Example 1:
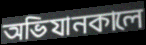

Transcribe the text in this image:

অভিযানকালে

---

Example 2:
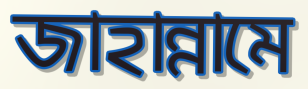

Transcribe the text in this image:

জাহান্নামে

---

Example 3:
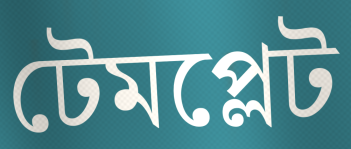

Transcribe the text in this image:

টেমপ্লেট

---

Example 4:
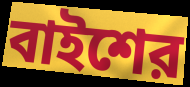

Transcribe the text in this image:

বাইশের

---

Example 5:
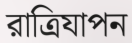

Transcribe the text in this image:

রাত্রিযাপন